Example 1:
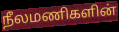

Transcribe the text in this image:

நீலமணிகளின்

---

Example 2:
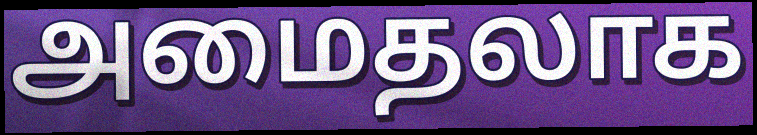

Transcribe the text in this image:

அமைதலாக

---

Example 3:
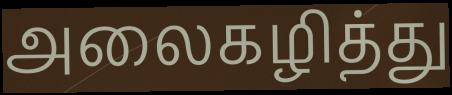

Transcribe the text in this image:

அலைகழித்து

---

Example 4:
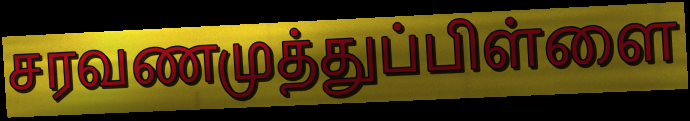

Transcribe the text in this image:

சரவணமுத்துப்பிள்ளை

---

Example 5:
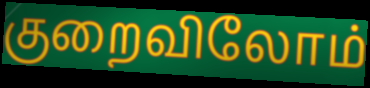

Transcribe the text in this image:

குறைவிலோம்